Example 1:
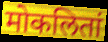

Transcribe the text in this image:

मोकलितां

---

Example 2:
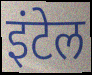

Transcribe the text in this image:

इंटेल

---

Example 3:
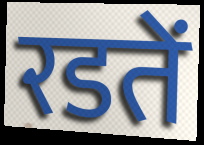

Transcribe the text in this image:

रडतें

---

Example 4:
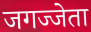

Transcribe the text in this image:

जगज्जेता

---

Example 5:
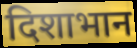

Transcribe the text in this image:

दिशाभान